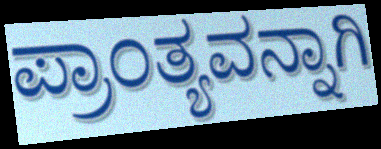
ಪ್ರಾಂತ್ಯವನ್ನಾಗಿ